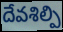
దేవశిల్పి